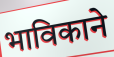
भाविकाने